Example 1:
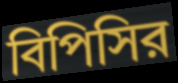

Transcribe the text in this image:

বিপিসির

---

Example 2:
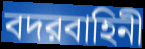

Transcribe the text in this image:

বদরবাহিনী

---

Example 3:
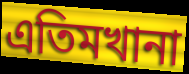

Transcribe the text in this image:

এতিমখানা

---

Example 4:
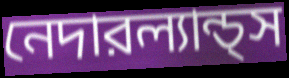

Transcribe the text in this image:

নেদারল্যান্ড্‌স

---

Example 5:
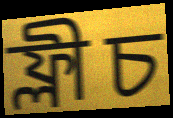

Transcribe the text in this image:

ফ্লীচ